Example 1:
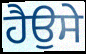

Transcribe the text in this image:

ਹੈਉਸੇ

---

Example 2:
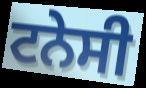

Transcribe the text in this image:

ਟਨੇਸੀ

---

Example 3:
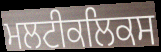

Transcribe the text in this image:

ਮਲਟੀਕਲਿਕਸ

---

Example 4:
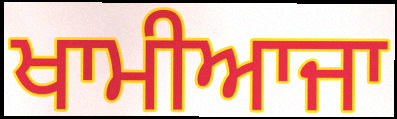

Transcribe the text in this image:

ਖਾਮੀਆਜਾ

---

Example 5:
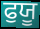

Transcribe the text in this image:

ਫੁਯੂ